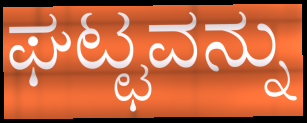
ಘಟ್ಟವನ್ನು